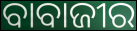
ବାବାଜୀର